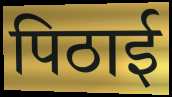
पिठाई